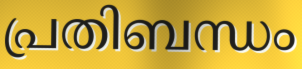
പ്രതിബന്ധം